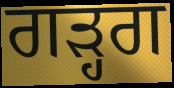
ਗੜ੍ਹਗ